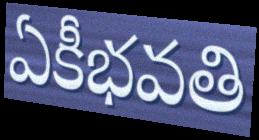
ఏకీభవతి